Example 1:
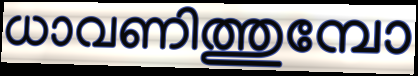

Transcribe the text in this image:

ധാവണിത്തുമ്പോ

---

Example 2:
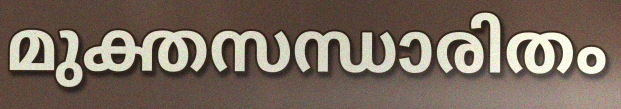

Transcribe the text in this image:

മുക്തസന്ധാരിതം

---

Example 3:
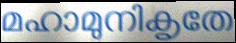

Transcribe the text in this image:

മഹാമുനികൃതേ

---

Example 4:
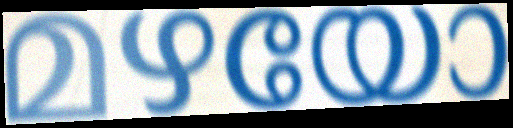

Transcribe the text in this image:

മഴയോ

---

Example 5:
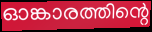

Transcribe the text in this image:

ഓങ്കാരത്തിന്റെ